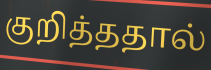
குறித்ததால்